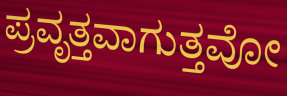
ಪ್ರವೃತ್ತವಾಗುತ್ತವೋ